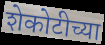
शेकोटीच्या